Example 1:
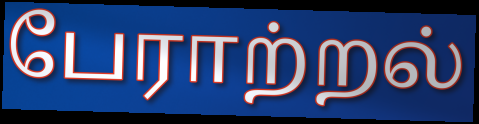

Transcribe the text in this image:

பேராற்றல்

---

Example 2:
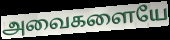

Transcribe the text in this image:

அவைகளையே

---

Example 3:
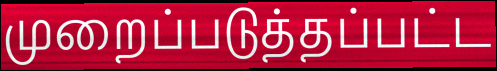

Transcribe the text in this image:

முறைப்படுத்தப்பட்ட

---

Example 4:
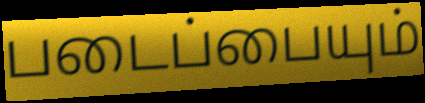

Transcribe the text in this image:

படைப்பையும்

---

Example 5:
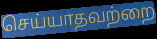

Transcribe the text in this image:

செய்யாதவற்றை